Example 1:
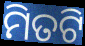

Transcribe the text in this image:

ମିତଟି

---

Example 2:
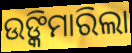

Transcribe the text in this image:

ଉଙ୍କିମାରିଲା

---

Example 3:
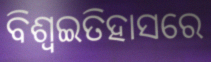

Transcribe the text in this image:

ବିଶ୍ଵଇତିହାସରେ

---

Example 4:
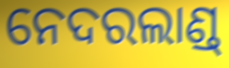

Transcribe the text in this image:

ନେଦରଲାଣ୍ଡ୍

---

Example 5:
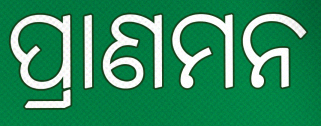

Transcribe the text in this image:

ପ୍ରାଣମନ